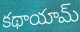
కథాయామ్